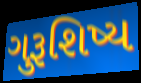
ગુરૂશિષ્ય